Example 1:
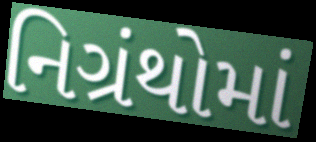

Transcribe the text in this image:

નિગ્રંથોમાં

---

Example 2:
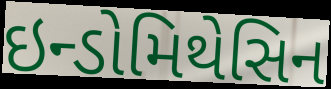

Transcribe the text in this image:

ઇન્ડોમિથેસિન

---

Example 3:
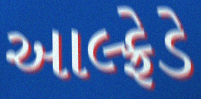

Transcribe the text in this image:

આલ્ફ્રેડે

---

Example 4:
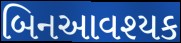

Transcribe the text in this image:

બિનઆવશ્યક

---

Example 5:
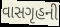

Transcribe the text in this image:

વાસગૃહની